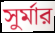
সুর্মার